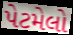
પેટમેલો